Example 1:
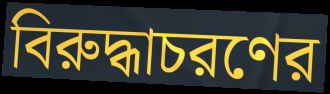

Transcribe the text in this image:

বিরুদ্ধাচরণের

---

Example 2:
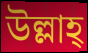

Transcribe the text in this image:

উল্লাহ্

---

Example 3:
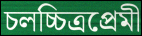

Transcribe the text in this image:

চলচ্চিত্রপ্রেমী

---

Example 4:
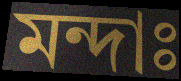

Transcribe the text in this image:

মন্দাঃ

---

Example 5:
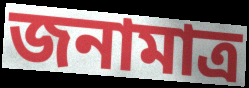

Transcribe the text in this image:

জনামাত্র